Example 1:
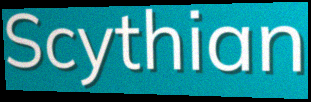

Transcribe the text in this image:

Scythian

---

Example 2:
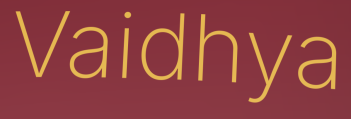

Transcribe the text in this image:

Vaidhya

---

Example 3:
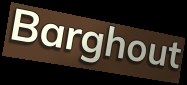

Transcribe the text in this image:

Barghout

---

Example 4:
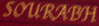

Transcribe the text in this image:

SOURABH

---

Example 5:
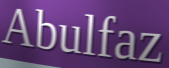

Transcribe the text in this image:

Abulfaz